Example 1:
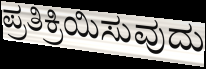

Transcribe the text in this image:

ಪ್ರತಿಕ್ರಿಯಿಸುವುದು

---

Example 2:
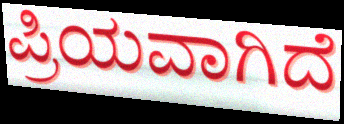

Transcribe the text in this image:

ಪ್ರಿಯವಾಗಿದೆ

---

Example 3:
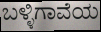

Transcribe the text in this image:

ಬಳ್ಳಿಗಾವೆಯ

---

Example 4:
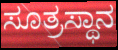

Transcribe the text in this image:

ಸೂತ್ರಸ್ಥಾನ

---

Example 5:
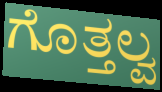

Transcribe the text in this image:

ಗೊತ್ತಲ್ವ